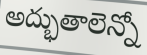
అద్భుతాలెన్నో